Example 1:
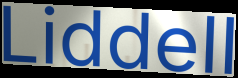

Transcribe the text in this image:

Liddell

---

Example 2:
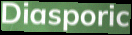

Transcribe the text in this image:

Diasporic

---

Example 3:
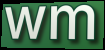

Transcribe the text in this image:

wm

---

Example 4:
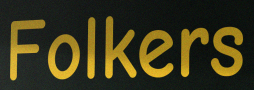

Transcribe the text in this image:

Folkers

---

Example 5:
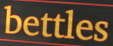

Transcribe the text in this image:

bettles